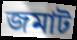
জমাট